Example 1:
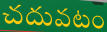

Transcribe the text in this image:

చదువటం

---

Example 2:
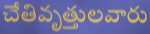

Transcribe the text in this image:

చేతివృత్తులవారు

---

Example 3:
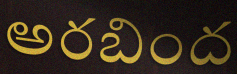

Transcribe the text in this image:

అరబింద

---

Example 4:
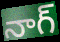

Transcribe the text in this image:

నాగ్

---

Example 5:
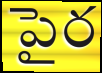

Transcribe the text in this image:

పైర